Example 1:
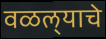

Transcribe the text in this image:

वळल्याचे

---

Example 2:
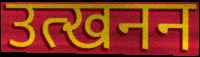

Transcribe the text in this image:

उत्‍खनन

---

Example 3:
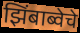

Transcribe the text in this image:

झिंबाब्वेचे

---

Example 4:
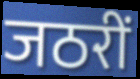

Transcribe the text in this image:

जठरीं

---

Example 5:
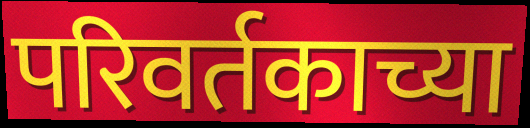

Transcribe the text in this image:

परिवर्तकाच्या